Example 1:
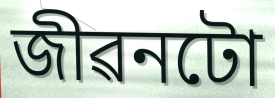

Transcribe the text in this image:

জীৱনটো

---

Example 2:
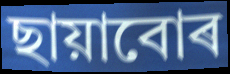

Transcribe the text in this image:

ছায়াবোৰ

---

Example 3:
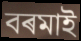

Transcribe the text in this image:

বৰমাই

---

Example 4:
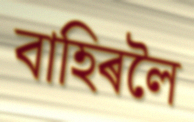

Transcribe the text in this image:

বাহিৰলৈ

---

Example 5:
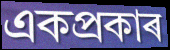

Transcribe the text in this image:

একপ্ৰকাৰ